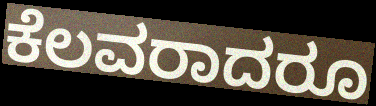
ಕೆಲವರಾದರೂ